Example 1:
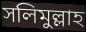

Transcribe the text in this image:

সলিমুল্লাহ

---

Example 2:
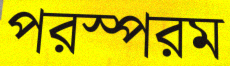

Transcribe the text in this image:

পরস্পরম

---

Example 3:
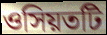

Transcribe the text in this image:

ওসিয়তটি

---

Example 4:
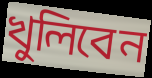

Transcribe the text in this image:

খুলিবেন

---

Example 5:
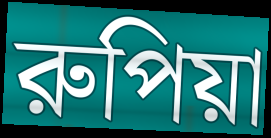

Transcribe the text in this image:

রুপিয়া